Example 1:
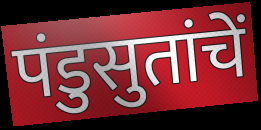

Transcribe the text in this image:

पंडुसुतांचें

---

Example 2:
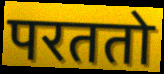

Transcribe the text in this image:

परततो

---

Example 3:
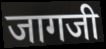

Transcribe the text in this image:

जागजी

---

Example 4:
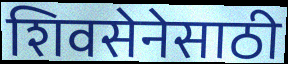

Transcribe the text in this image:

शिवसेनेसाठी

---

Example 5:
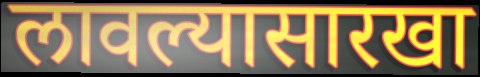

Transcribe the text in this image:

लावल्यासारखा